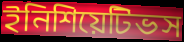
ইনিশিয়েটিভস